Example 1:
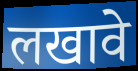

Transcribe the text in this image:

लखावे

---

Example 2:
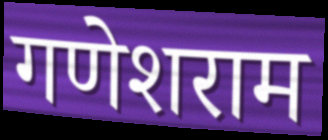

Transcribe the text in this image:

गणेशराम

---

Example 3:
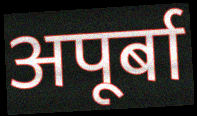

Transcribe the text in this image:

अपूर्बा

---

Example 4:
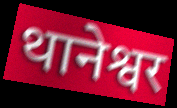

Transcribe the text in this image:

थानेश्वर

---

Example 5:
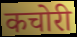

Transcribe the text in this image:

कचोरी